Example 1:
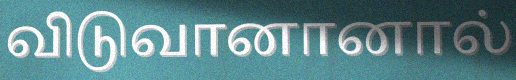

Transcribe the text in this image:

விடுவானானால்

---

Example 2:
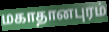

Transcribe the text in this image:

மகாதானபுரம்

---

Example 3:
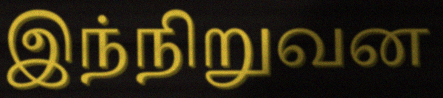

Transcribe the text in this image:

இந்நிறுவன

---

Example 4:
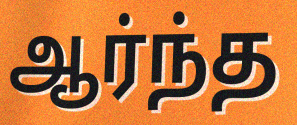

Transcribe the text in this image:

ஆர்ந்த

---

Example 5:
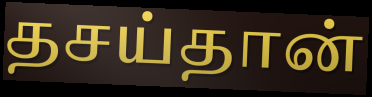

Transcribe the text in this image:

தசய்தான்